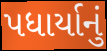
પધાર્યાનું